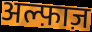
अल्फ़ाज़